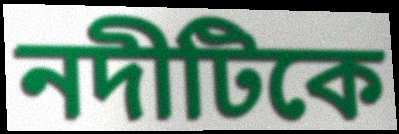
নদীটিকে